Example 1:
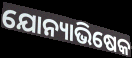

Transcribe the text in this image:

ଯୋନ୍ୟାଭିଷେକ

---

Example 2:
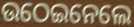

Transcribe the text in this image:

ଉଠେଇନେଲେ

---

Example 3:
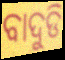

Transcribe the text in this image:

ବାଦୁଡି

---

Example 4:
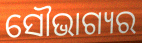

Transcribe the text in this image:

ସୌଭାଗ୍ୟର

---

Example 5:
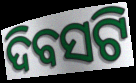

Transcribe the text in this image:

ଦିବସଟି